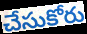
చేసుకోరు